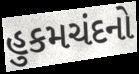
હુકમચંદનો